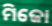
ମିଜୋ